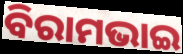
ବିରାମଭାଇ